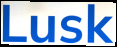
Lusk